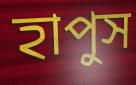
হাপুস